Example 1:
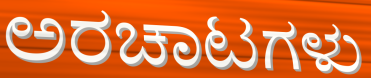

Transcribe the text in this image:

ಅರಚಾಟಗಳು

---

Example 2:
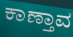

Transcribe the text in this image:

ಕಾಣ್ತಾವ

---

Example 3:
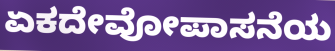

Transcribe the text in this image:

ಏಕದೇವೋಪಾಸನೆಯ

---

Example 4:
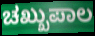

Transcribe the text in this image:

ಚಖ್ಖುಪಾಲ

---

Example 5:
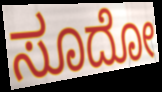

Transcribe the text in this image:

ಸೂದೋ